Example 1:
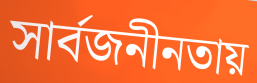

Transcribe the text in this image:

সার্বজনীনতায়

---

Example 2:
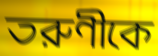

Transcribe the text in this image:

তরুণীকে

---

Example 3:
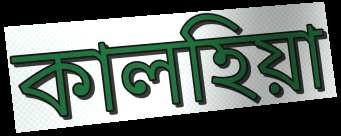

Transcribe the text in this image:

কালহিয়া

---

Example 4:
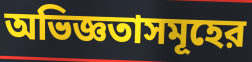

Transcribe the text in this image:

অভিজ্ঞতাসমূহের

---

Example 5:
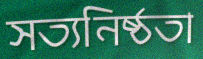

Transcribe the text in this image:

সত্যনিষ্ঠতা